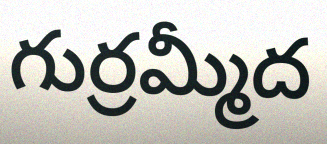
గుర్రమ్మీద